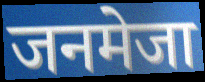
जनमेजा